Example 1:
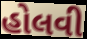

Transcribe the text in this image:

હોલવી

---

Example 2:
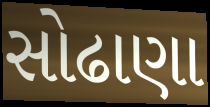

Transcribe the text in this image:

સોઢાણા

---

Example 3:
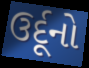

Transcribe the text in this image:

ઉર્દૂનો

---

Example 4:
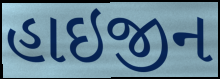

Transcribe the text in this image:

હાઇજીન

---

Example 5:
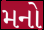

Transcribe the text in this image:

મનો